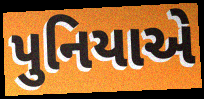
પુનિયાએ